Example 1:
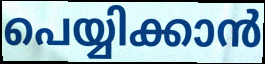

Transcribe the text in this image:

പെയ്യിക്കാൻ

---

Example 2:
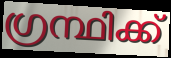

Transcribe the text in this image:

ഗ്രന്ഥിക്ക്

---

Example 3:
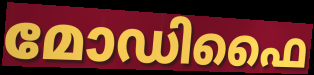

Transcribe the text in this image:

മോഡിഫൈ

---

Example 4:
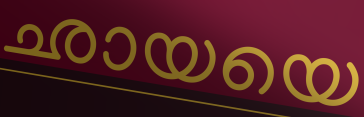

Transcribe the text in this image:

ഛായയെ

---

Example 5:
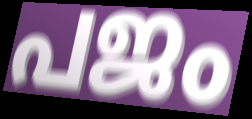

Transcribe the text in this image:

പജം